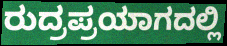
ರುದ್ರಪ್ರಯಾಗದಲ್ಲಿ